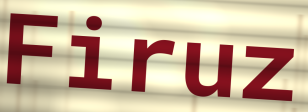
Firuz